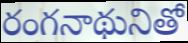
రంగనాథునితో